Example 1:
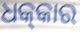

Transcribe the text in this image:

ଧକ୍‍କାର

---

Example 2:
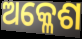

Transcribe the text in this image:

ଅକ୍ଳେଶ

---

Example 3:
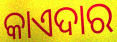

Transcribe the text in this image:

କାଏଦାର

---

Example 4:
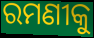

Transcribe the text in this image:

ରମଣୀକୁ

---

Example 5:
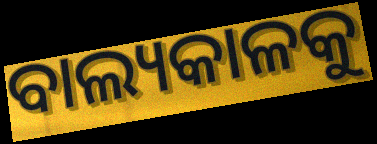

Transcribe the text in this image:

ବାଲ୍ୟକାଳକୁ